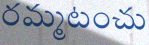
రమ్మటంచు